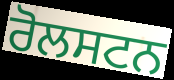
ਰੋਲਸਟਨ